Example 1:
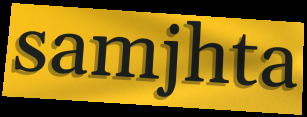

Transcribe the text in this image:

samjhta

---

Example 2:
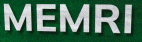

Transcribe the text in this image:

MEMRI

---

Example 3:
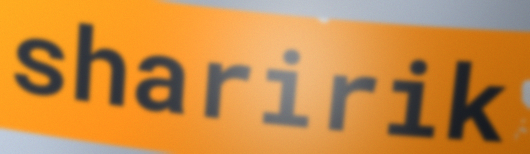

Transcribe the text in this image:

sharirik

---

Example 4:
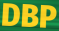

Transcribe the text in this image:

DBP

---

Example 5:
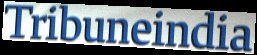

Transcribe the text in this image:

Tribuneindia